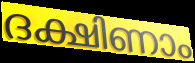
ദക്ഷിണാം